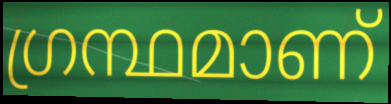
ഗ്രന്ഥമാണ്